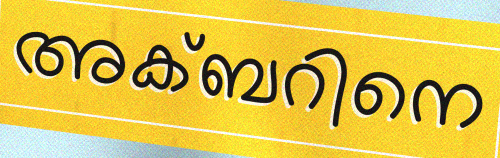
അക്ബറിനെ